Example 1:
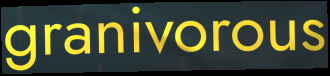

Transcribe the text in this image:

granivorous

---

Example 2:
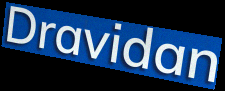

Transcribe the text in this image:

Dravidan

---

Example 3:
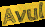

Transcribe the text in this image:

Avul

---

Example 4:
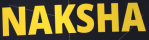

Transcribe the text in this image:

NAKSHA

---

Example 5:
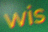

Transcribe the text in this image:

wis